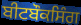
ਬੀਟਬੌਕਸਿੰਗ